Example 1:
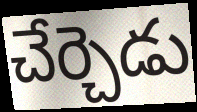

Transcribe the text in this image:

చేర్చెడు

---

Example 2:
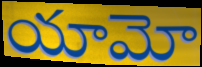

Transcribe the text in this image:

యామో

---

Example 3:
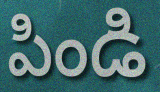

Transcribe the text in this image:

పిండి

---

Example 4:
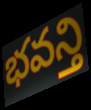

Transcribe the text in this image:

భవన్తి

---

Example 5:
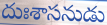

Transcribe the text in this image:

దుఃశాసనుడు